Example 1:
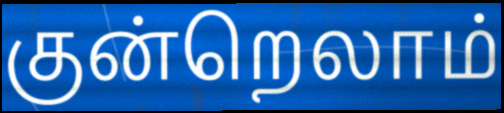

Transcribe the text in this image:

குன்றெலாம்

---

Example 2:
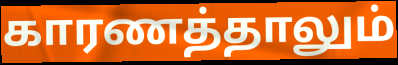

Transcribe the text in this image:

காரணத்தாலும்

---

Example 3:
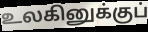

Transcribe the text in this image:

உலகினுக்குப்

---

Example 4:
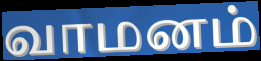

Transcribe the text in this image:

வாமனம்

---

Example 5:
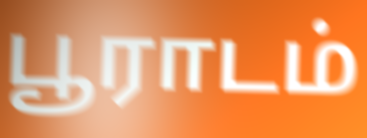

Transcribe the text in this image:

பூராடம்